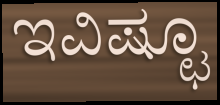
ಇವಿಷ್ಟೂ